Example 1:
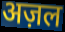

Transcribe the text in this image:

अज़ल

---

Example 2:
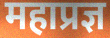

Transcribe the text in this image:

महाप्रज्ञ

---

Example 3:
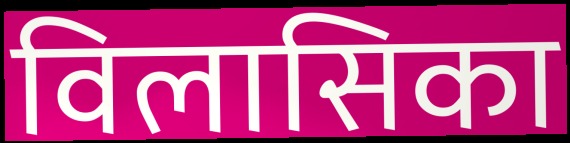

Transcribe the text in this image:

विलासिका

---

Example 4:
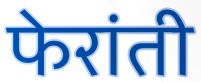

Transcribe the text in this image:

फेरांती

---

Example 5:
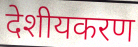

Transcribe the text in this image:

देशीयकरण